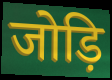
जोड़ि